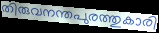
തിരുവനന്തപുരത്തുകാരി